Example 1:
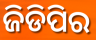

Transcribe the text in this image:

ଜିଡିପିର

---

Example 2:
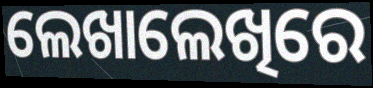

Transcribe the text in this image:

ଲେଖାଲେଖିରେ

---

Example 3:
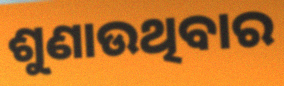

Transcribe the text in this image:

ଶୁଣାଉଥିବାର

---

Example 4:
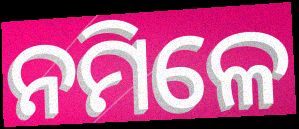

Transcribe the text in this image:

ନମିଳେ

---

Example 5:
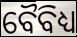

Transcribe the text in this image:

ବୈବିଧ୍ୟ